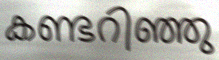
കണ്ടറിഞ്ഞു